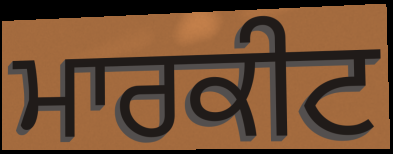
ਮਾਰਕੀਟ